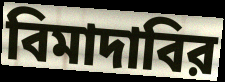
বিমাদাবির